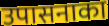
उपासनाका